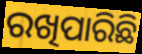
ରଖିପାରିଛି